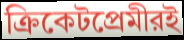
ক্রিকেটপ্রেমীরই